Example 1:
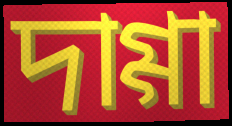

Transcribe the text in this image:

দাগ্গা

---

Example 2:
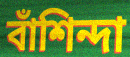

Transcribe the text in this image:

বাঁশিন্দা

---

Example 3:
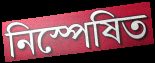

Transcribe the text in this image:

নিস্পেষিত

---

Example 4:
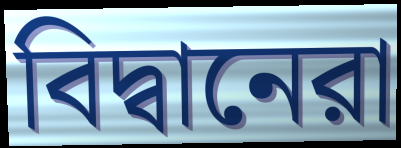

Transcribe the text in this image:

বিদ্বানেরা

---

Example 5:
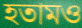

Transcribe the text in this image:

হতামও